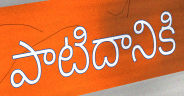
పాటిదానికి